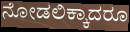
ನೋಡಲಿಕ್ಕಾದರೂ